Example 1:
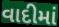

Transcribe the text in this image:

વાદીમાં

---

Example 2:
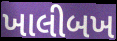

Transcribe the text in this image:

ખાલીબખ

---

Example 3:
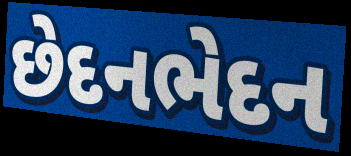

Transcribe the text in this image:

છેદનભેદન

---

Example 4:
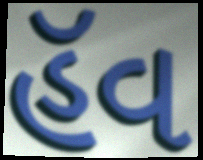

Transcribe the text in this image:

હૅવ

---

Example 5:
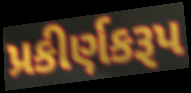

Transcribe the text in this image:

પ્રકીર્ણકરૂપ